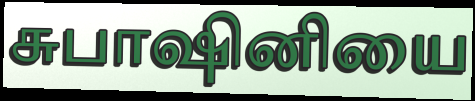
சுபாஷினியை